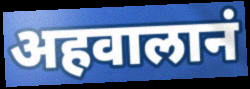
अहवालानं